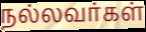
நல்லவர்கள்